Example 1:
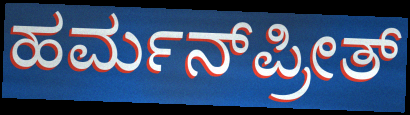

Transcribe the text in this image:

ಹರ್ಮನ್‌ಪ್ರೀತ್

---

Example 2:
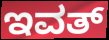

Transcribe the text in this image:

ಇವತ್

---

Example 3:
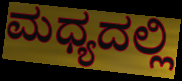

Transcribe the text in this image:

ಮಧ್ಯದಲ್ಲಿ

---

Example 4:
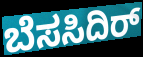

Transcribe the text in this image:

ಬೆಸಸಿದಿರ್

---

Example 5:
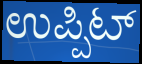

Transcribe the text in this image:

ಉಪ್ಪಿಟ್